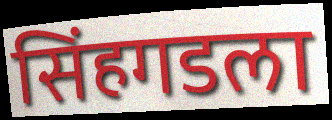
सिंहगडला